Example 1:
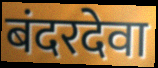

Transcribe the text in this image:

बंदरदेवा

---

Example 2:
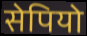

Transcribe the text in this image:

सेपियो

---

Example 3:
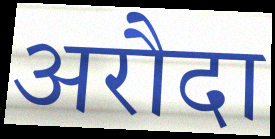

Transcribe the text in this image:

अरौदा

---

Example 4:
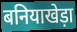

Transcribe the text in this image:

बनियाखेड़ा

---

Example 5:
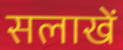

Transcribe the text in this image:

सलाखें